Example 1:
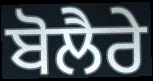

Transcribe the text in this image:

ਬੋਲੈਰੇ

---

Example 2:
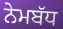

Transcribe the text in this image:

ਨੇਮਬੱਧ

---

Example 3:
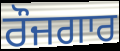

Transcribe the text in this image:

ਰੌਜਗਾਰ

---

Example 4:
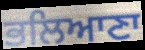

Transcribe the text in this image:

ਭਲਿਆਣਾ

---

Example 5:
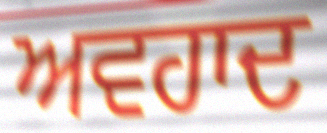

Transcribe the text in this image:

ਅਵਹਾਦ